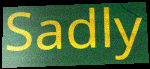
Sadly